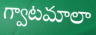
గ్వాటమాలా